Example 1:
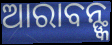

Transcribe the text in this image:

ଆରାବନ୍ଙ୍କ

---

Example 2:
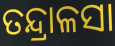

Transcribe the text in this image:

ତନ୍ଦ୍ରାଳସା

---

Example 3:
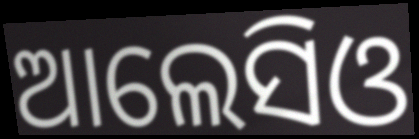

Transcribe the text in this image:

ଆଲେସିଓ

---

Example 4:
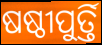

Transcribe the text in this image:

ଷଷ୍ଠୀପୁର୍ତ୍ତି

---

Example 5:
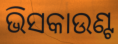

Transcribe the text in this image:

ଭିସକାଉଣ୍ଟ